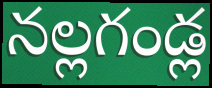
నల్లగండ్ల